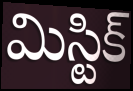
మిస్టిక్